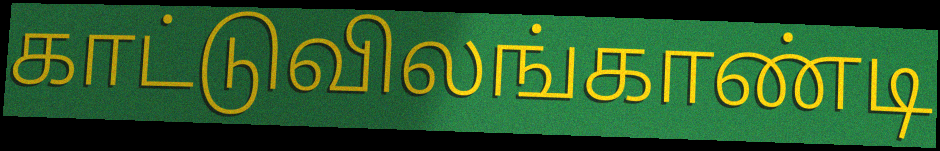
காட்டுவிலங்காண்டி